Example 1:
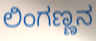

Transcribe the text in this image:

ಲಿಂಗಣ್ಣನ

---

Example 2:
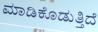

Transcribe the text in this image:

ಮಾಡಿಕೊಡುತ್ತಿದೆ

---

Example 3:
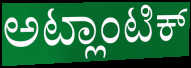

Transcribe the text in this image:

ಅಟ್ಲಾಂಟಿಕ್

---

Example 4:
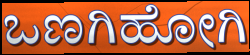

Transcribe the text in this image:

ಒಣಗಿಹೋಗಿ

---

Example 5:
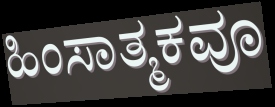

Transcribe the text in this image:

ಹಿಂಸಾತ್ಮಕವೂ